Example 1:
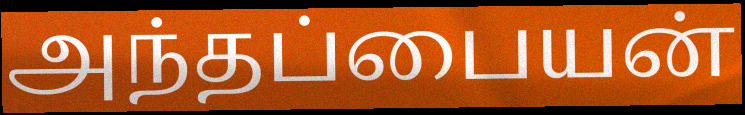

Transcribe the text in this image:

அந்தப்பையன்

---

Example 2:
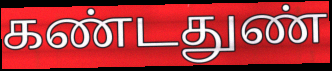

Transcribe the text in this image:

கண்டதுண்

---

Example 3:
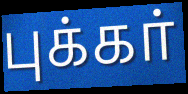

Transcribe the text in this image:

புக்கர்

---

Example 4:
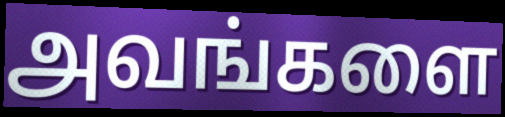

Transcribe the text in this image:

அவங்களை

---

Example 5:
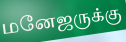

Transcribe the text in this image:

மனேஜருக்கு